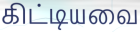
கிட்டியவை